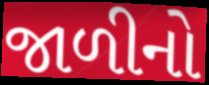
જાળીનો